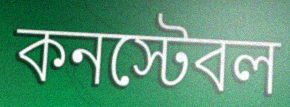
কনস্টেবল